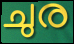
ചുര